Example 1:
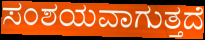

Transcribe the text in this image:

ಸಂಶಯವಾಗುತ್ತದೆ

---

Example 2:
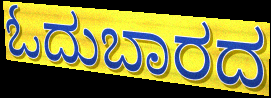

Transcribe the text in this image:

ಓದುಬಾರದ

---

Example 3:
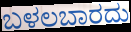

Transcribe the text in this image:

ಬಳಲಬಾರದು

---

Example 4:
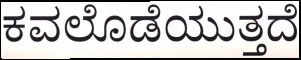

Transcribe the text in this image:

ಕವಲೊಡೆಯುತ್ತದೆ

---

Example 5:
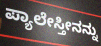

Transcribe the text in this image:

ಪ್ಯಾಲೇಸ್ತೀನನ್ನು